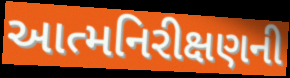
આત્મનિરીક્ષણની